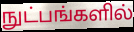
நுட்பங்களில்